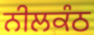
ਨੀਲਕੰਠ